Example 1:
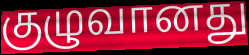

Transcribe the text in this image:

குழுவானது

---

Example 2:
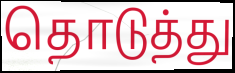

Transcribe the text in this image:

தொடுத்து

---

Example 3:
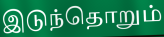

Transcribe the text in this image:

இடுந்தொறும்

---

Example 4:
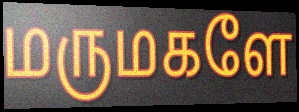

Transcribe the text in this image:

மருமகளே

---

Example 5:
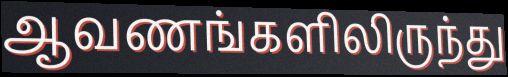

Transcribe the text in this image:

ஆவணங்களிலிருந்து